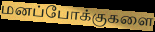
மனப்போக்குகளை